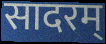
सादरम्